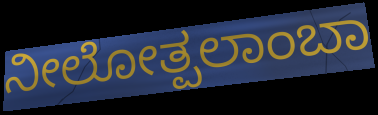
ನೀಲೋತ್ಪಲಾಂಬಾ